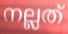
നല്ലത്